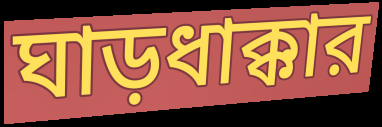
ঘাড়ধাক্কার